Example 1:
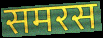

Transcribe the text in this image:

समरस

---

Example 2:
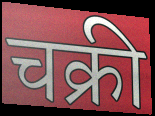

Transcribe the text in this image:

चक्री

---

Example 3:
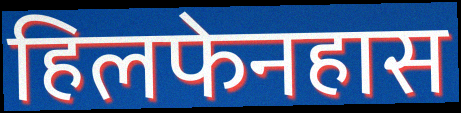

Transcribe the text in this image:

हिलफेनहास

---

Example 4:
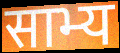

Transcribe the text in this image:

साभ्य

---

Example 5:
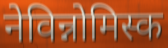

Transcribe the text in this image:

नेविन्नोमिस्क